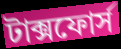
টাক্সফোর্স